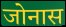
जोनास